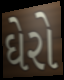
ઘેરો